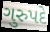
ગુરુપદે